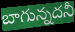
బాగున్నదనీ